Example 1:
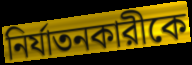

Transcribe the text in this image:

নির্যাতনকারীকে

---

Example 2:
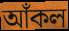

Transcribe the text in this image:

আঁকল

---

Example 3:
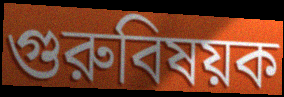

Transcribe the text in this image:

গুরুবিষয়ক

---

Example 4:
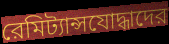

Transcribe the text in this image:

রেমিট্যান্সযোদ্ধাদের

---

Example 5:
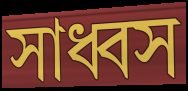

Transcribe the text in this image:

সাধ্বস